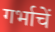
गर्भाचें